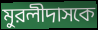
মুরলীদাসকে